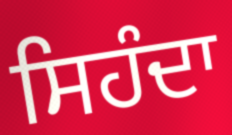
ਸਿਹੰਦਾ